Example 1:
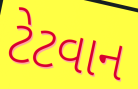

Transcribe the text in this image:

ટેટવાન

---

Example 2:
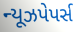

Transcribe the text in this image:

ન્યૂઝપેપર્સ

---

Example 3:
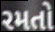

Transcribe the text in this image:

રમતો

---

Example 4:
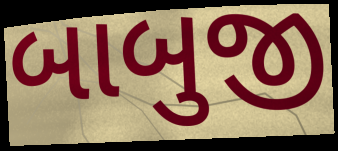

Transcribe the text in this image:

બાબુજી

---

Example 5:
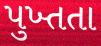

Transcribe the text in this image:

પુખ્તતા